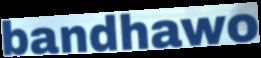
bandhawo